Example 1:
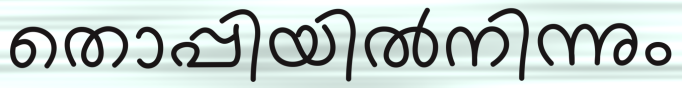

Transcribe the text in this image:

തൊപ്പിയിൽനിന്നും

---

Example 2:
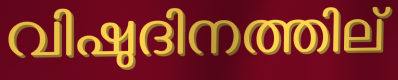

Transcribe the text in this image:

വിഷുദിനത്തില്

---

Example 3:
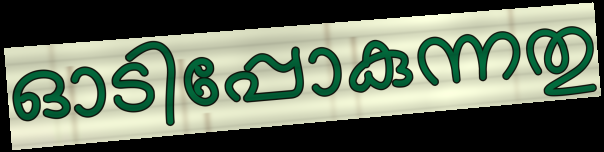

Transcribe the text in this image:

ഓടിപ്പോകുന്നതു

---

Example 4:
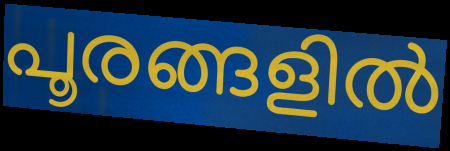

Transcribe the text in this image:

പൂരങ്ങളിൽ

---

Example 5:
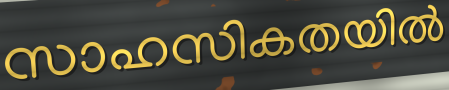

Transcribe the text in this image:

സാഹസികതയിൽ